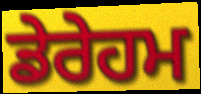
ਡੇਰੇਹਮ